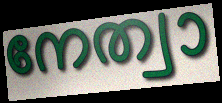
നേത്വാ